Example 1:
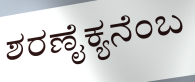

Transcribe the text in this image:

ಶರಣೈಕ್ಯನೆಂಬ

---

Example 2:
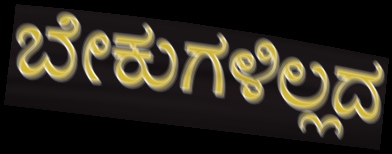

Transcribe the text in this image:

ಬೇಕುಗಳಿಲ್ಲದ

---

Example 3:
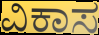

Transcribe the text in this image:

ವಿಕಾಸ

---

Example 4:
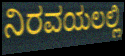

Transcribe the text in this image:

ನಿರವಯಲಲ್ಲಿ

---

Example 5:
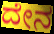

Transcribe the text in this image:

ದೇನ